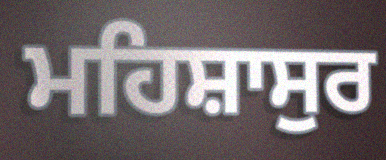
ਮਹਿਸ਼ਾਸੁਰ